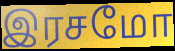
இரசமோ